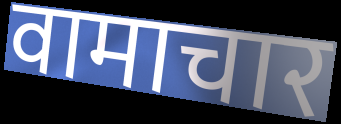
वामाचार